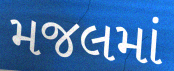
મજલમાં